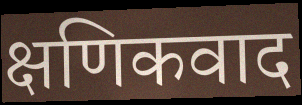
क्षणिकवाद